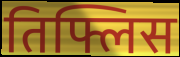
तिफ्लिस